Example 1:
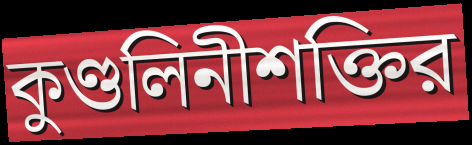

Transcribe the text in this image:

কুণ্ডলিনীশক্তির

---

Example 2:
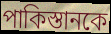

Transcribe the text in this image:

পাকিস্তানকে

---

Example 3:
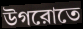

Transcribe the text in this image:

উগরোতে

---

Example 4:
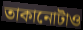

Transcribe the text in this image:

তাকানোটাও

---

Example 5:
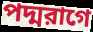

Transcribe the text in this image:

পদ্মরাগে